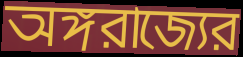
অঙ্গরাজ্যের